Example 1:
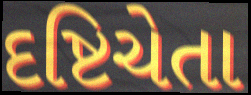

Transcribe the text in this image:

દષ્ટિચેતા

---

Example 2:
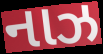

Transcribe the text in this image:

નાઝ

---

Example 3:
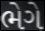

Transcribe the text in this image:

ભેગે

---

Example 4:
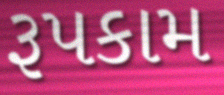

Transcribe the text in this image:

રૂપકામ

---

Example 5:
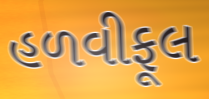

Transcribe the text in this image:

હળવીફૂલ